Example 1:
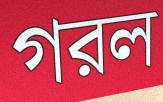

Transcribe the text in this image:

গরল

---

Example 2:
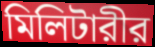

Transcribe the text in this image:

মিলিটারীর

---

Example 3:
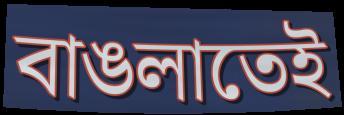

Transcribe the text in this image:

বাঙলাতেই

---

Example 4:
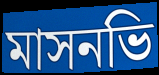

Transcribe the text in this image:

মাসনভি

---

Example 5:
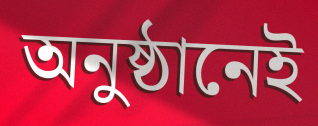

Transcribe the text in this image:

অনুষ্ঠানেই